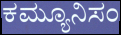
ಕಮ್ಯೂನಿಸಂ